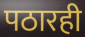
पठारही